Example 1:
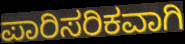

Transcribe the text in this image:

ಪಾರಿಸರಿಕವಾಗಿ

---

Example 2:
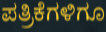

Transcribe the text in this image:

ಪತ್ರಿಕೆಗಳಿಗೂ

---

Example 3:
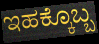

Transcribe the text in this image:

ಇಹಕ್ಕೊಬ್ಬ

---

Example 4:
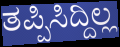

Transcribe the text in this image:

ತಪ್ಪಿಸಿದ್ದಿಲ್ಲ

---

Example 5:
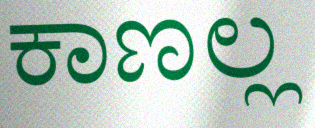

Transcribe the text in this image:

ಕಾಣಲ್ಲ